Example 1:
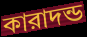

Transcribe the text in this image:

কারাদন্ড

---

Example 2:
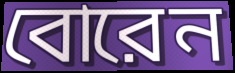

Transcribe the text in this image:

বোরেন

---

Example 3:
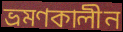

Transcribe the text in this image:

ভ্রমণকালীন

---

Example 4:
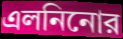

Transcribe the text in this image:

এলনিনোর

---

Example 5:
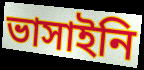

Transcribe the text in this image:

ভাসাইনি